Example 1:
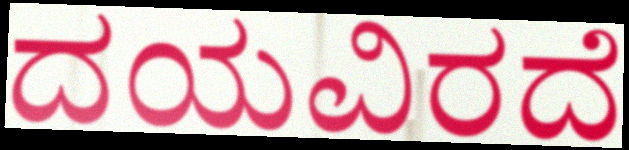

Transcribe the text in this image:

ದಯವಿರದೆ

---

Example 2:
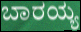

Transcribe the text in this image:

ಬಾರಯ್ಯ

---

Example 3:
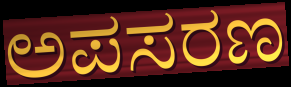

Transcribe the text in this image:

ಅಪಸರಣ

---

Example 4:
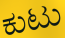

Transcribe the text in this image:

ಕುಟು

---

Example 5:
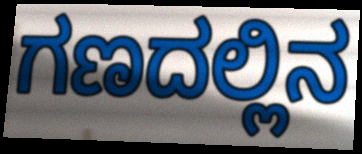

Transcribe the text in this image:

ಗಣದಲ್ಲಿನ